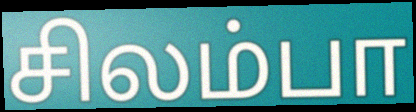
சிலம்பா